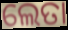
ଲେତା